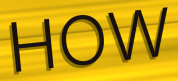
HOW